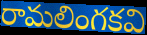
రామలింగకవి